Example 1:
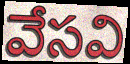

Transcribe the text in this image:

వేసవి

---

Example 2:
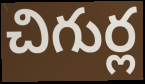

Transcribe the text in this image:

చిగుర్ల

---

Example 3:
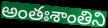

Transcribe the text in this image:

అంతఃశాంతిని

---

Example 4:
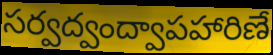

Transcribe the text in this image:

సర్వద్వంద్వాపహారిణే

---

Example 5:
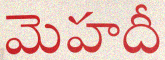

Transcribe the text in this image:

మెహదీ